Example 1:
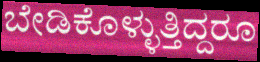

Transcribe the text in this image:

ಬೇಡಿಕೊಳ್ಳುತ್ತಿದ್ದರೂ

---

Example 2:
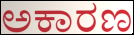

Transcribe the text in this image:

ಅಕಾರಣ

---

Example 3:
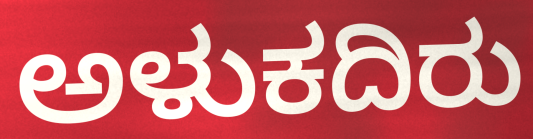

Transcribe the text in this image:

ಅಳುಕದಿರು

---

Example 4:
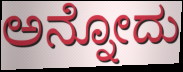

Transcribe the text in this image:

ಅನ್ನೋದು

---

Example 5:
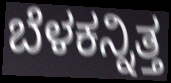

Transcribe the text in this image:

ಬೆಳಕನ್ನಿತ್ತ